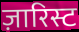
ज़ारिस्ट